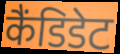
कैंडिडेट